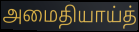
அமைதியாய்த்